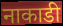
नाकाडी